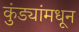
कुंड्यांमधून